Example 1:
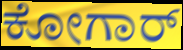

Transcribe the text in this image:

ಕೋಗಾರ್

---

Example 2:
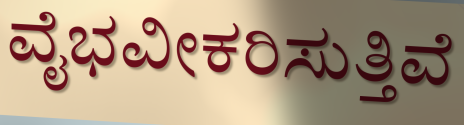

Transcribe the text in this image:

ವೈಭವೀಕರಿಸುತ್ತಿವೆ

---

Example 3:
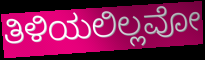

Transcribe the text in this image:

ತಿಳಿಯಲಿಲ್ಲವೋ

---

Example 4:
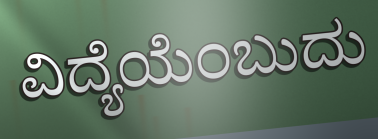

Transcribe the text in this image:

ವಿದ್ಯೆಯೆಂಬುದು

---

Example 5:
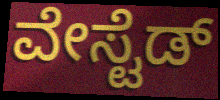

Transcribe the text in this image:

ವೇಸ್ಟೆಡ್